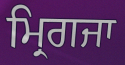
ਮ੍ਰਿਗਜਾ